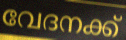
വേദനക്ക്